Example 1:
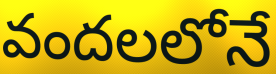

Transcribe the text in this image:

వందలలోనే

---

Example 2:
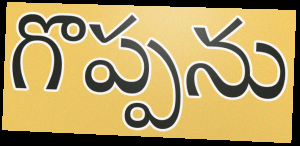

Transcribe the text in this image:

గొప్పను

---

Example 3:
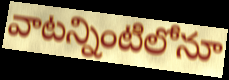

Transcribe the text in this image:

వాటన్నింటిలోనూ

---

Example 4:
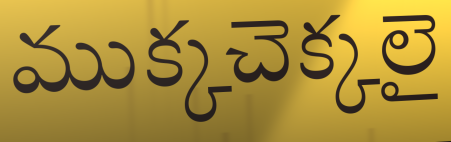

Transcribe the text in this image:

ముక్కచెక్కలై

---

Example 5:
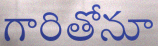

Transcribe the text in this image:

గారితోనూ